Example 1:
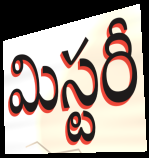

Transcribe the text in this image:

మిస్టరీ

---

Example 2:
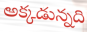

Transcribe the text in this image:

అక్కడున్నది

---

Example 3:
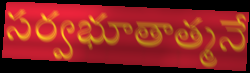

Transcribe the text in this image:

సర్వభూతాత్మనే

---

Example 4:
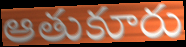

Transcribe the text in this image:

ఆతుకూరు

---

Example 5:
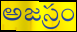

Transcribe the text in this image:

అజస్రం